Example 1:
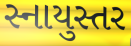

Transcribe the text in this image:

સ્નાયુસ્તર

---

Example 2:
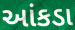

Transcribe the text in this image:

આંકડા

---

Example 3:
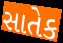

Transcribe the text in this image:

સાતેક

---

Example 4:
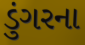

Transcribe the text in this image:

ડુંગરના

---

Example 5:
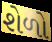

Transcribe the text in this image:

શેળો